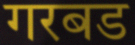
गरबड